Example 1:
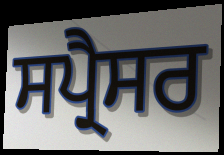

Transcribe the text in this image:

ਸਪ੍ਰੈਸਰ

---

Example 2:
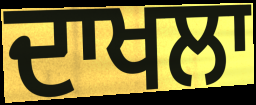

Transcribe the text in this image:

ਦਾਖਲਾ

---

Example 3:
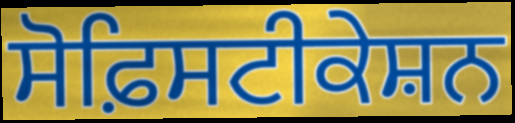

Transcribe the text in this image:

ਸੋਫ਼ਿਸਟੀਕੇਸ਼ਨ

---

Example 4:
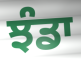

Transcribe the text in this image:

ਝੰਡਾ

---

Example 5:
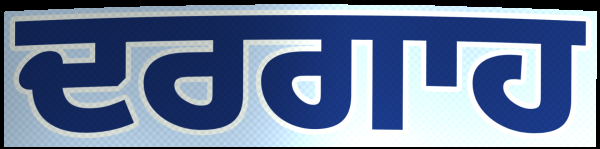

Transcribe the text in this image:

ਦਰਗਾਹ